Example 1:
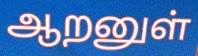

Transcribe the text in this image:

ஆறனுள்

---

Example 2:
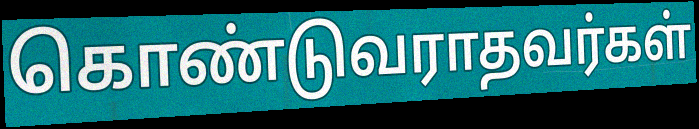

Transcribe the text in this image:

கொண்டுவராதவர்கள்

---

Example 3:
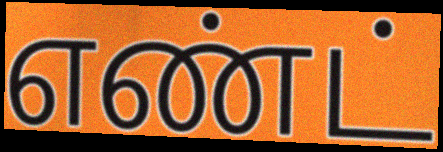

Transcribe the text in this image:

எண்ட்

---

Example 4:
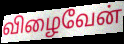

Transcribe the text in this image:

விழைவேன்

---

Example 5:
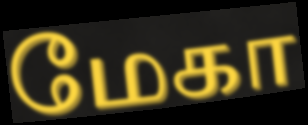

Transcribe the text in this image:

மேகா